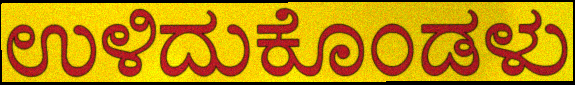
ಉಳಿದುಕೊಂಡಳು